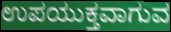
ಉಪಯುಕ್ತವಾಗುವ